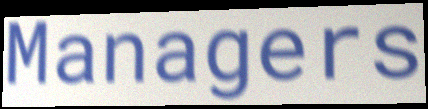
Managers